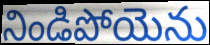
నిండిపోయెను